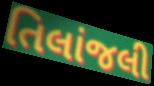
તિલાંજલી